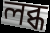
লব্ধ